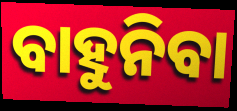
ବାହୁନିବା